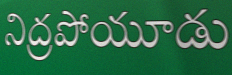
నిద్రపోయూడు